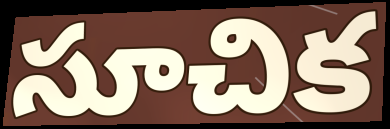
సూచిక